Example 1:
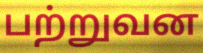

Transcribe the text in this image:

பற்றுவன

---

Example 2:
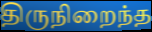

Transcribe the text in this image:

திருநிறைந்த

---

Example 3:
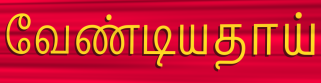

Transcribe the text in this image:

வேண்டியதாய்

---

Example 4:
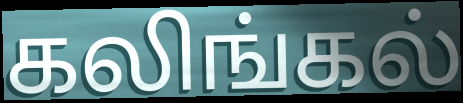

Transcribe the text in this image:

கலிங்கல்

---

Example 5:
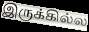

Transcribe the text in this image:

இருக்கில்ல